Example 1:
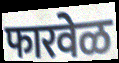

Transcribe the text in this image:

फारवेळ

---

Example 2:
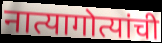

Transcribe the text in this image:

नात्यागोत्यांची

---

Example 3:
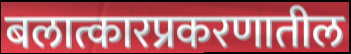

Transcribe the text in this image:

बलात्कारप्रकरणातील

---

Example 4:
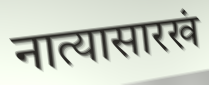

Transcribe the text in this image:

नात्यासारखं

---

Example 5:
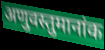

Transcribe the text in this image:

अणुवस्तुमानांक